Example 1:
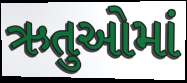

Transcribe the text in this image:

ઋતુઓમાં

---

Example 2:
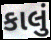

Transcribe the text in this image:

કાલું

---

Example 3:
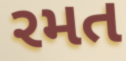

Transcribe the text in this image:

રમત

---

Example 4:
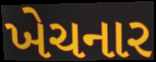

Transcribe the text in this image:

ખેચનાર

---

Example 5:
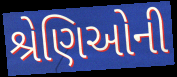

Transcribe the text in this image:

શ્રેણિઓની